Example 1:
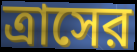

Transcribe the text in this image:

ত্রাসের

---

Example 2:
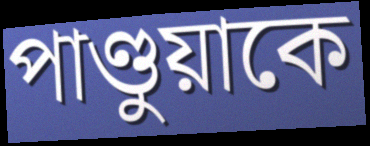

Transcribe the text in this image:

পাণ্ডুয়াকে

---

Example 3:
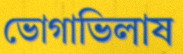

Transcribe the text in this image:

ভোগাভিলাষ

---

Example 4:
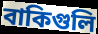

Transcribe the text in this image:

বাকিগুলি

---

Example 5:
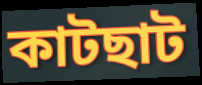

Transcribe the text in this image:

কাটছাট